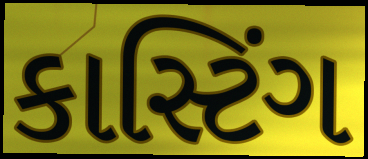
કાસ્ટિંગ